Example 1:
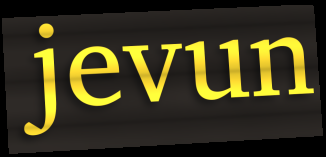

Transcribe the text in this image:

jevun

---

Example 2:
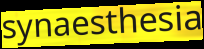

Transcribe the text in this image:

synaesthesia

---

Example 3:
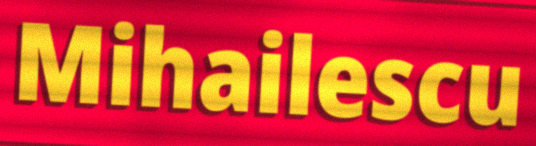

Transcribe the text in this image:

Mihailescu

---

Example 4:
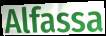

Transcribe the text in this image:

Alfassa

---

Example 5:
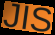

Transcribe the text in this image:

JIS